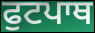
ਫੁਟਪਾਥ